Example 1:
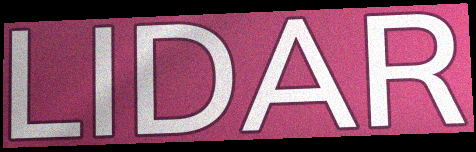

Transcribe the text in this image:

LIDAR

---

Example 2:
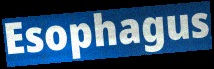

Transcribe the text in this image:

Esophagus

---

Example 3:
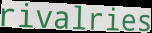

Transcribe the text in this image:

rivalries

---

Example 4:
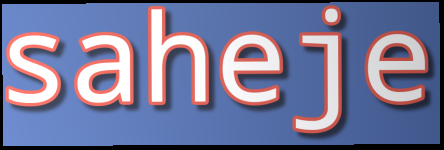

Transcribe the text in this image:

saheje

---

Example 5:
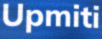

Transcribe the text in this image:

Upmiti